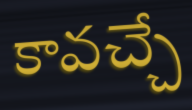
కావచ్చే